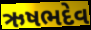
ઋષભદેવ